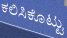
ಕಲಿಸಿಕೊಟ್ಟು